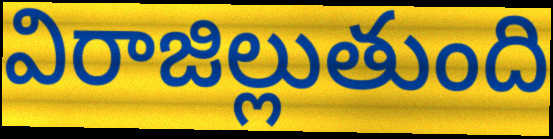
విరాజిల్లుతుంది